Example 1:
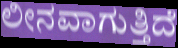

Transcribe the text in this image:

ಲೀನವಾಗುತ್ತಿದೆ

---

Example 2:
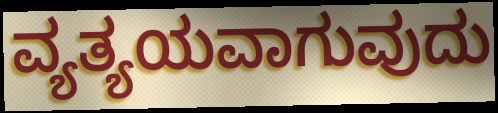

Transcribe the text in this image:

ವ್ಯತ್ಯಯವಾಗುವುದು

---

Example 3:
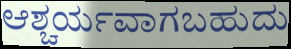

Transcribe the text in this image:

ಆಶ್ಚರ್ಯವಾಗಬಹುದು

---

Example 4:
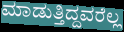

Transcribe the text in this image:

ಮಾಡುತ್ತಿದ್ದವರೆಲ್ಲ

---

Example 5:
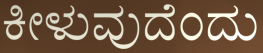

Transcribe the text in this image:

ಕೀಳುವುದೆಂದು